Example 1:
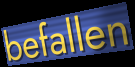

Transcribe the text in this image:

befallen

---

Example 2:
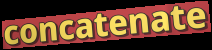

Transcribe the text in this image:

concatenate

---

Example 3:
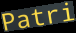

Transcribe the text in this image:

Patri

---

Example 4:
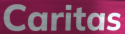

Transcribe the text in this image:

Caritas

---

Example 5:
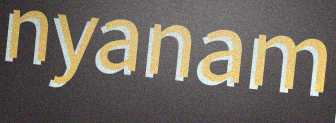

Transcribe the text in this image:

nyanam